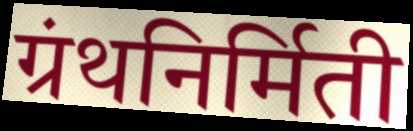
ग्रंथनिर्मिती